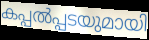
കപ്പൽപ്പടയുമായി